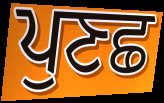
ਪੁਣਛ